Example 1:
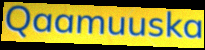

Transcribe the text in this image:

Qaamuuska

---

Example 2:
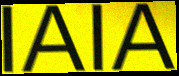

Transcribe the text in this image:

IAIA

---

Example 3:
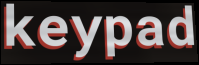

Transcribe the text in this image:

keypad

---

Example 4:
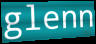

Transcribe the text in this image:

glenn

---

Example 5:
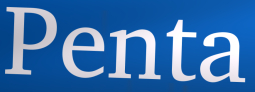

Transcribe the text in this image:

Penta